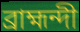
ব্রাহ্মন্দী